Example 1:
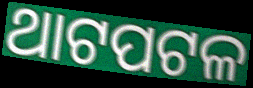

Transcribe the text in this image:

ଥାଟପଟଳ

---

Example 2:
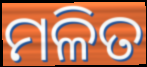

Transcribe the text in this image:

ମଳିତ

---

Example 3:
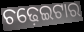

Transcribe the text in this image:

ଚଢ଼େଇଟାର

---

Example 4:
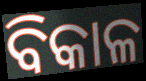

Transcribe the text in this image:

ବିକାଳ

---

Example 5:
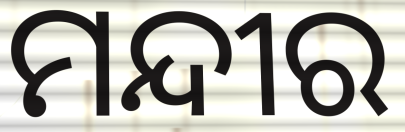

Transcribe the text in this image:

ମନ୍ଦୀର